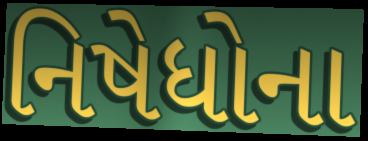
નિષેધોના